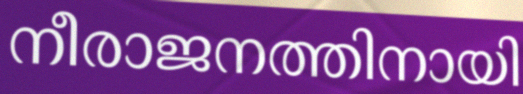
നീരാജനത്തിനായി